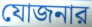
যোজনার